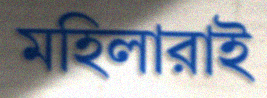
মহিলারাই